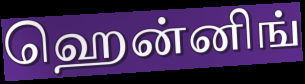
ஹென்னிங்